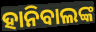
ହାନିବାଲଙ୍କ